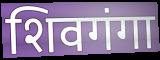
शिवगंगा